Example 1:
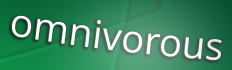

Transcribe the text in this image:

omnivorous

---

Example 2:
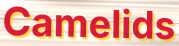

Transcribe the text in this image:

Camelids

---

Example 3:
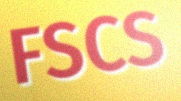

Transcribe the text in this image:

FSCS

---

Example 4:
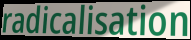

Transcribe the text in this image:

radicalisation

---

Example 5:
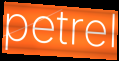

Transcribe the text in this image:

petrel